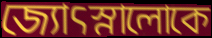
জ্যোৎস্নালোকে